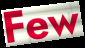
Few